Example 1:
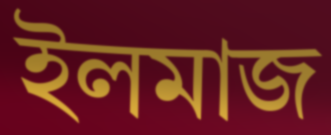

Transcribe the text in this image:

ইলমাজ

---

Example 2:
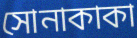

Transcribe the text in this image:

সোনাকাকা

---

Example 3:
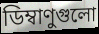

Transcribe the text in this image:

ডিম্বাণুগুলো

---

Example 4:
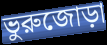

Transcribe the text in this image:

ভুরুজোড়া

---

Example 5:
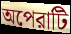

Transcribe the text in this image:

অপেরাটি